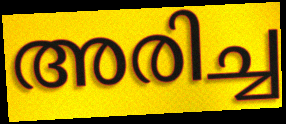
അരിച്ച